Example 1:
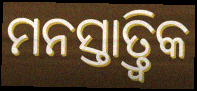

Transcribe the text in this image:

ମନସ୍ତାତ୍ତ୍ବିକ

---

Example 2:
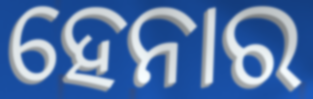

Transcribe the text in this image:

ହେନାର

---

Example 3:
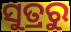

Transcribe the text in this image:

ସୁତ୍ରରୁ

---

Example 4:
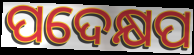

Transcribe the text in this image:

ପଦେକ୍ଷପ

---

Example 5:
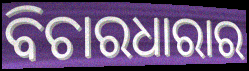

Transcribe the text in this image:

ବିଚାରଧାରାର